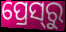
ପ୍ରେସ୍‍ରୁ